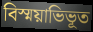
বিস্ময়াভিভূত